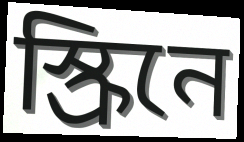
স্ক্রিনে